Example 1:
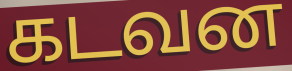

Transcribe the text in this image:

கடவன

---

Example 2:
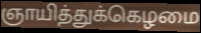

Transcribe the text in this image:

ஞாயித்துக்கெழமை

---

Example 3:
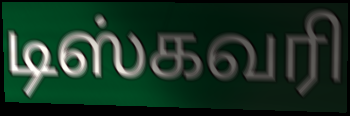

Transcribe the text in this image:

டிஸ்கவரி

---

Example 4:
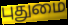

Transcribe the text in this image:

புதுமை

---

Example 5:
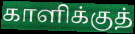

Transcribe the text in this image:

காளிக்குத்